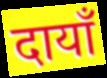
दायाँ